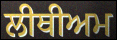
ਲੀਥੀਅਮ